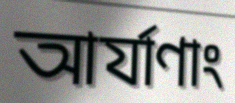
আর্যাণাং